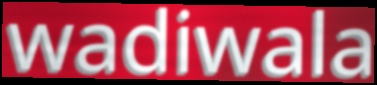
wadiwala